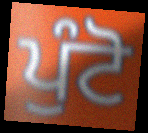
ਪੁੰਟੋ